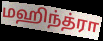
மஹிந்த்ரா